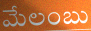
మేలంబు